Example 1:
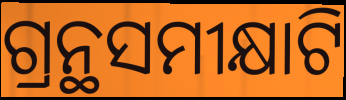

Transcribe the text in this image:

ଗ୍ରନ୍ଥସମୀକ୍ଷାଟି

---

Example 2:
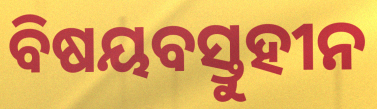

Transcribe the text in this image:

ବିଷୟବସ୍ତୁହୀନ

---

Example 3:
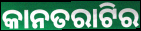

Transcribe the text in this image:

କାନତରାଟିର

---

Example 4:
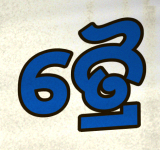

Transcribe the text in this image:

ତ୍ରୈ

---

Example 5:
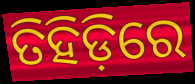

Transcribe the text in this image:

ତିହିଡ଼ିରେ